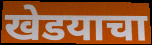
खेडयाचा